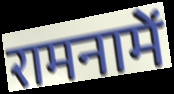
रामनामें